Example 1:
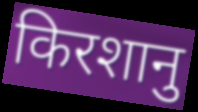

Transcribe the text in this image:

किरशानु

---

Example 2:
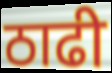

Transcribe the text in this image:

ठाढी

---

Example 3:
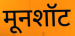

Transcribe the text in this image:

मूनशॉट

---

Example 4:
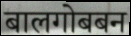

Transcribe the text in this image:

बालगोबबन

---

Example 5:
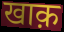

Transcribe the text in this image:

खाक़